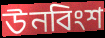
উনবিংশ